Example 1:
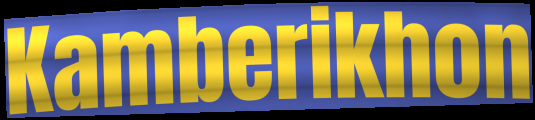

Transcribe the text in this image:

Kamberikhon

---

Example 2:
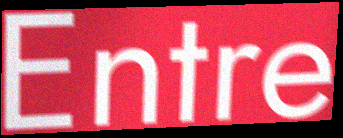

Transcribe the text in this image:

Entre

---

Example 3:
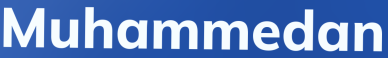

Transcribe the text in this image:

Muhammedan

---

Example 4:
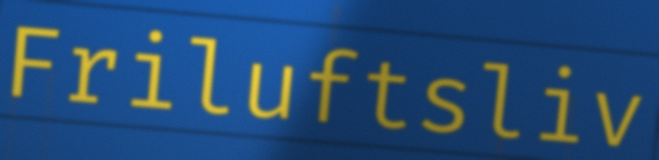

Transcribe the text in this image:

Friluftsliv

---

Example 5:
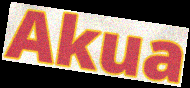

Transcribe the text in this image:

Akua